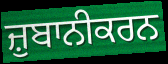
ਜ਼ੁਬਾਨੀਕਰਨ